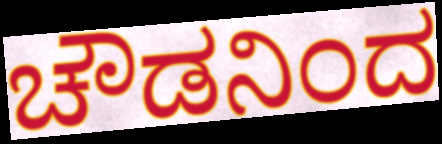
ಚೌಡನಿಂದ